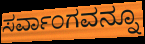
ಸರ್ವಾಂಗವನ್ನೂ